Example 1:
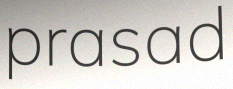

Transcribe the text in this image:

prasad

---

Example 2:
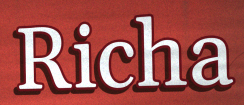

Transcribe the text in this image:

Richa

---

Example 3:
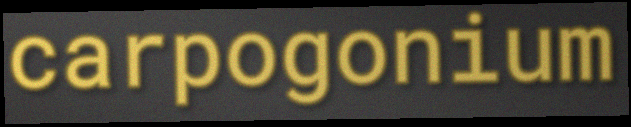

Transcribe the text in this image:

carpogonium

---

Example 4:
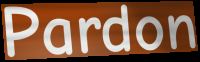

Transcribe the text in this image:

Pardon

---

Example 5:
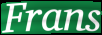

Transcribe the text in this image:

Frans